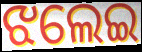
ଝଲେଇ